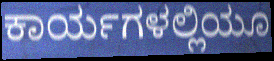
ಕಾರ್ಯಗಳಲ್ಲಿಯೂ